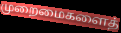
முறைமைகளைத்